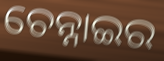
ଚେନ୍ନାଇର